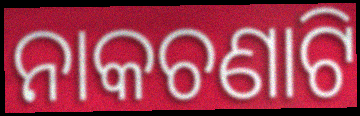
ନାକଚଣାଟି